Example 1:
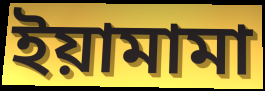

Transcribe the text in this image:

ইয়ামামা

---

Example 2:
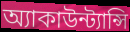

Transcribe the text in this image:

অ্যাকাউন্ট্যান্সি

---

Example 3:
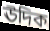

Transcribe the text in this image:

ঊদিক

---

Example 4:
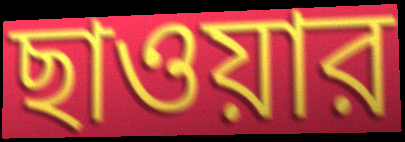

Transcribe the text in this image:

ছাওয়ার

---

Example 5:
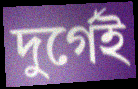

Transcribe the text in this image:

দুর্গেই